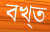
বখ্ত